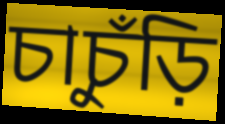
চাচুঁড়ি